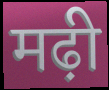
मढ़ी